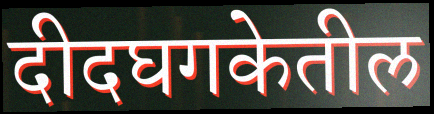
दीदघगकेतील